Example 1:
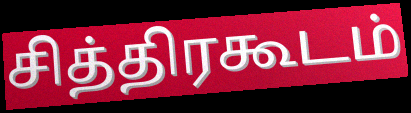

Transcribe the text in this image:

சித்திரகூடம்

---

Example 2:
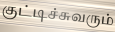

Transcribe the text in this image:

குட்டிச்சுவரும்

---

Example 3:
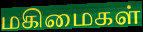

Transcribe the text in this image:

மகிமைகள்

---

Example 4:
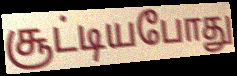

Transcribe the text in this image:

சூட்டியபோது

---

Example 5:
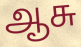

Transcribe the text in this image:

ஆசு